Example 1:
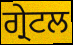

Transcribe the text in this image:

ਗ੍ਰੇਟਲ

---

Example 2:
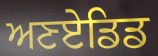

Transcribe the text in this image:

ਅਣਏਡਿਡ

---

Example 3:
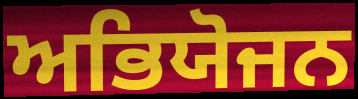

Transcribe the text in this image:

ਅਭਿਯੋਜਨ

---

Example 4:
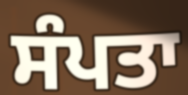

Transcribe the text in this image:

ਸੰਪਤਾ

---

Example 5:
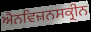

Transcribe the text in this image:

ਐਨਵਿਜ਼ਨਸਕ੍ਰੀਨ